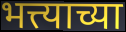
भत्त्याच्या